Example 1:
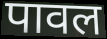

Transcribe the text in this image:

पावल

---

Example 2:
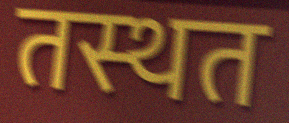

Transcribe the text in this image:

तस्थत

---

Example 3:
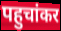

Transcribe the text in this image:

पहुचांकर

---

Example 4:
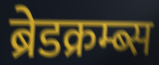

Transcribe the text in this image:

ब्रेडक्रम्ब्स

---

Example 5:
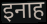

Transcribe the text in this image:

इनाह